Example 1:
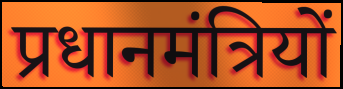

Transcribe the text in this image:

प्रधानमंत्रियों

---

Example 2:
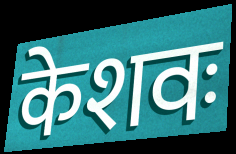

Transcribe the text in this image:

केशवः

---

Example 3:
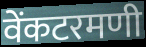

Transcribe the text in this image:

वेंकटरमणी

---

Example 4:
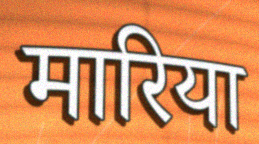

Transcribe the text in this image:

मारिया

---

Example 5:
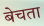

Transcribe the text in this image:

बेचता